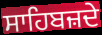
ਸਾਹਿਬਜ਼ਦੇ